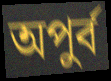
অপুর্ব